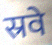
स्रवे